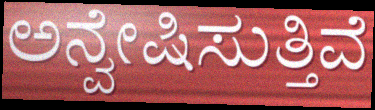
ಅನ್ವೇಷಿಸುತ್ತಿವೆ